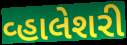
વ્હાલેશરી